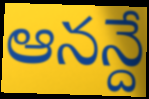
ఆనన్దే